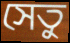
সেতু